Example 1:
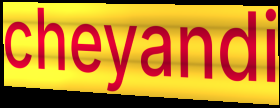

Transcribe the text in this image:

cheyandi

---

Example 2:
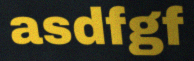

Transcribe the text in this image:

asdfgf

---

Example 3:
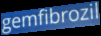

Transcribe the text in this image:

gemfibrozil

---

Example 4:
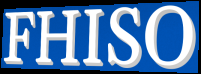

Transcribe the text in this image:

FHISO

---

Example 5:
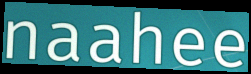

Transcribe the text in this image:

naahee